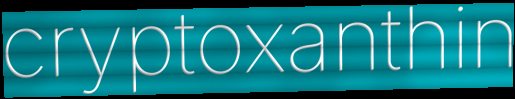
cryptoxanthin